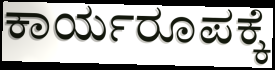
ಕಾರ್ಯರೂಪಕ್ಕೆ